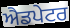
ਐਡਪੇਟਰ